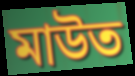
মাউত